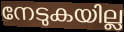
നേടുകയില്ല